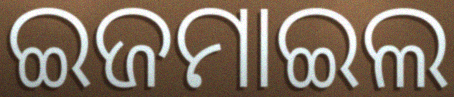
ଇଜମାଇଲ